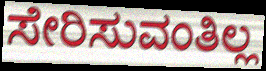
ಸೇರಿಸುವಂತಿಲ್ಲ